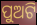
ପୁଅଟି